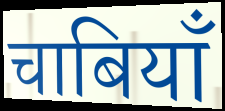
चाबियाँ